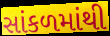
સાંકળમાંથી